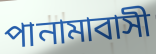
পানামাবাসী